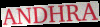
ANDHRA